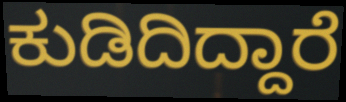
ಕುಡಿದಿದ್ದಾರೆ